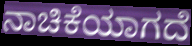
ನಾಚಿಕೆಯಾಗದೆ